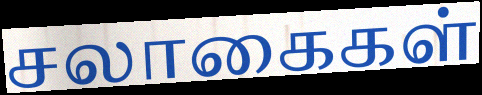
சலாகைகள்